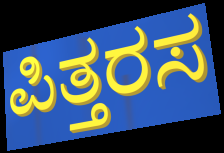
ಪಿತ್ತರಸ